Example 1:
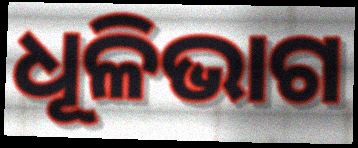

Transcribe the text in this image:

ଧୂଳିଭାଗ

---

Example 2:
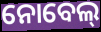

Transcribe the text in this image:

ନୋବେଲ୍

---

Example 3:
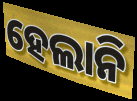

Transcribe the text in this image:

ହେଲାନି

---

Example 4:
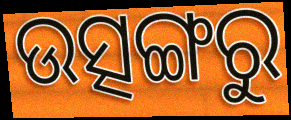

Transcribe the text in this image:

ଉତ୍ସଙ୍ଗରୁ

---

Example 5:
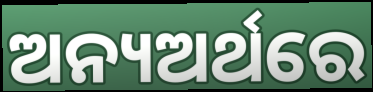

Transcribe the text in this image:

ଅନ୍ୟଅର୍ଥରେ